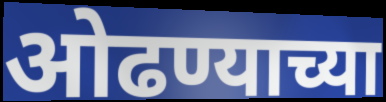
ओढण्याच्या